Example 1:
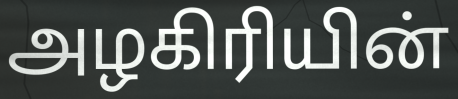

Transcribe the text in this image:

அழகிரியின்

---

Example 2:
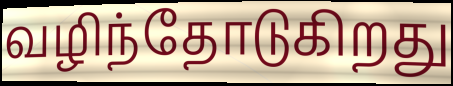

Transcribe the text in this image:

வழிந்தோடுகிறது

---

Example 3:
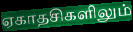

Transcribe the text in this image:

ஏகாதசிகளிலும்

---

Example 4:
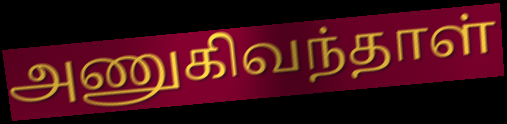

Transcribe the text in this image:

அணுகிவந்தாள்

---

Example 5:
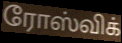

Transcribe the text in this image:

ரோஸ்விக்